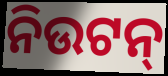
ନିଉଟନ୍